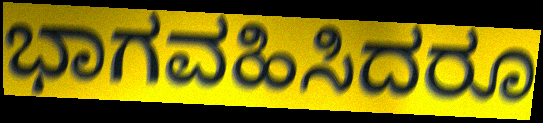
ಭಾಗವಹಿಸಿದರೂ